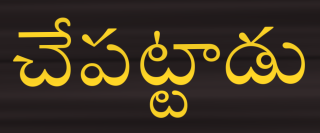
చేపట్టాడు